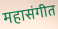
महासंगीत